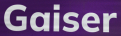
Gaiser